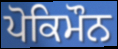
ਪੋਕਿਮੌਨ